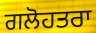
ਗਲੋਹਤਰਾ